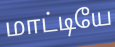
மாட்டியே